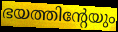
ഭയത്തിന്റേയും